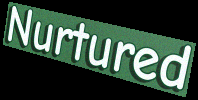
Nurtured